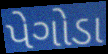
પેગોડા